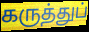
கருத்துப்